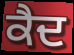
ਕੈਦ